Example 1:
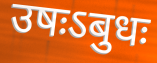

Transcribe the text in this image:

उषःऽबुधः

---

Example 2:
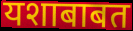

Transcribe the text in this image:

यशाबाबत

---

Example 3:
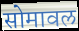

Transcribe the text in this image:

सोमावल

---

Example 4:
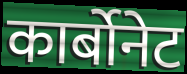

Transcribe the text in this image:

कार्बोनेट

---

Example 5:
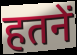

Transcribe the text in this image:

हतनें